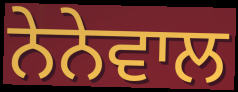
ਨੇਨੇਵਾਲ